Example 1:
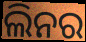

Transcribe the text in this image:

ଲିନର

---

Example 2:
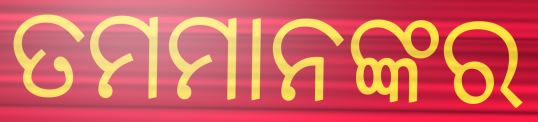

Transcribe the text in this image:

ତମମାନଙ୍କର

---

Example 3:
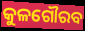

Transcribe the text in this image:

କୁଳଗୌରବ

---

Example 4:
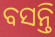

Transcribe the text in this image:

ବସନ୍ତି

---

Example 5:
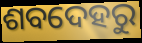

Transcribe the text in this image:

ଶବଦେହରୁ